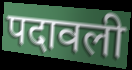
पदावली